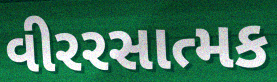
વીરરસાત્મક